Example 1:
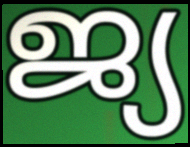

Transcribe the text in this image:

ജ്യ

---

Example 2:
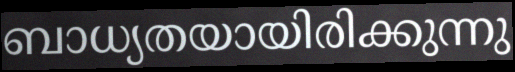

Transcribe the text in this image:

ബാധ്യതയായിരിക്കുന്നു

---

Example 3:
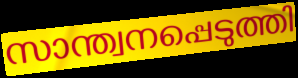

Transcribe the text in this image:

സാന്ത്വനപ്പെടുത്തി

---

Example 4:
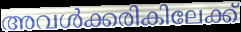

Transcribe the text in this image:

അവൾക്കരികിലേക്ക്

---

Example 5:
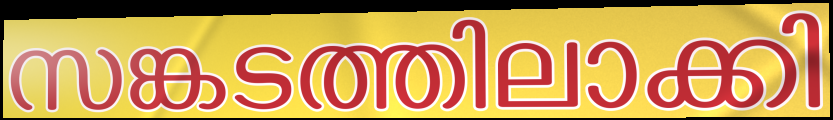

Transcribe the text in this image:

സങ്കടത്തിലാക്കി